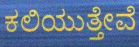
ಕಲಿಯುತ್ತೇವೆ